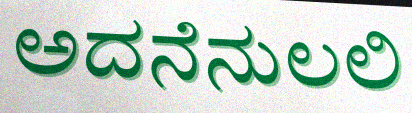
ಅದನೆನುಲಲಿ